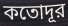
কতোদূর